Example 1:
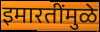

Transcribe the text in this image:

इमारतींमुळे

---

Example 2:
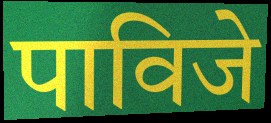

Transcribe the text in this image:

पाविजे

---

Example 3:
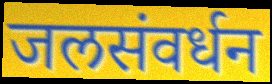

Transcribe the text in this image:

जलसंवर्धन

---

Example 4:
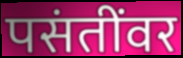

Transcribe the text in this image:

पसंतींवर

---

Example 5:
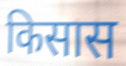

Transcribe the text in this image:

किसास